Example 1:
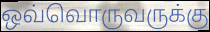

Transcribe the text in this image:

ஒவ்வொருவருக்கு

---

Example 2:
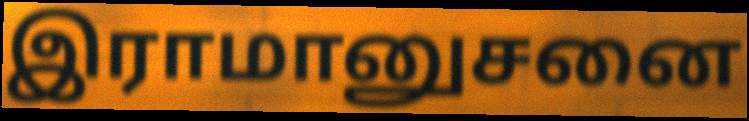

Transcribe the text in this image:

இராமானுசனை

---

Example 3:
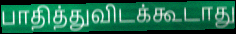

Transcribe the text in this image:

பாதித்துவிடக்கூடாது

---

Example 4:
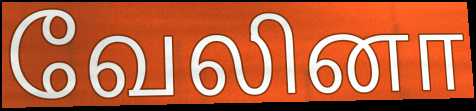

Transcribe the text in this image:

வேலினா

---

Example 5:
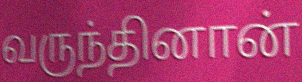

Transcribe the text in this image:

வருந்தினான்